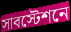
সাবস্টেশনে